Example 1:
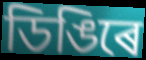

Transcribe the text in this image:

ডিঙিৰে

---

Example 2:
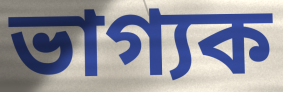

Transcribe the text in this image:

ভাগ্যক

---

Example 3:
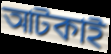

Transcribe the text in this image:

আটকাই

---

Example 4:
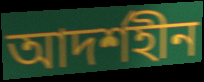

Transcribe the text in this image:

আদৰ্শহীন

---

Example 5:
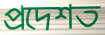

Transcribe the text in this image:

প্ৰদেশত